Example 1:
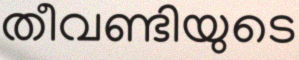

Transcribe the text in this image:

തീവണ്ടിയുടെ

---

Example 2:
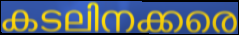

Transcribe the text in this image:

കടലിനക്കരെ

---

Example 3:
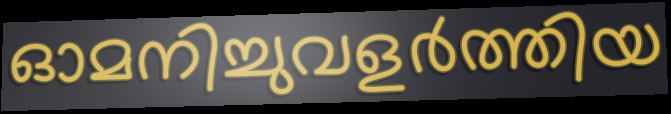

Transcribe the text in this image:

ഓമനിച്ചുവളർത്തിയ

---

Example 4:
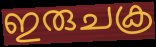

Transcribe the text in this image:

ഇരുചക്ര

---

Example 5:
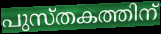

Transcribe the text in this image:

പുസ്തകത്തിന്